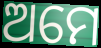
ଅମେ